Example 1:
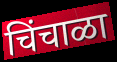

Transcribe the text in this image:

चिंचाळा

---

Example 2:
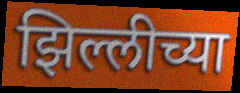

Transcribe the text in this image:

झिल्लीच्या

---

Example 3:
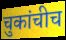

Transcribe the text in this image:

चुकांचीच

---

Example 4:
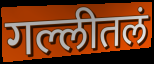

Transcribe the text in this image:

गल्लीतलं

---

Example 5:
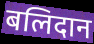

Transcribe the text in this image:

बलिदान